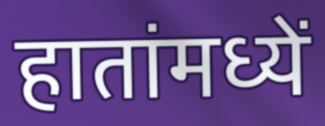
हातांमध्यें